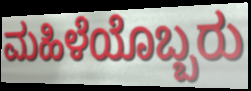
ಮಹಿಳೆಯೊಬ್ಬರು